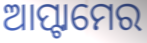
ଆପ୍ଟାମେର